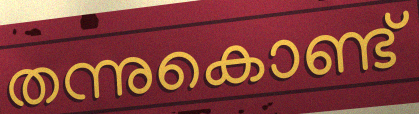
തന്നുകൊണ്ട്